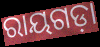
ରାୟଗଡ଼ା